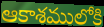
ఆకాశములోకి